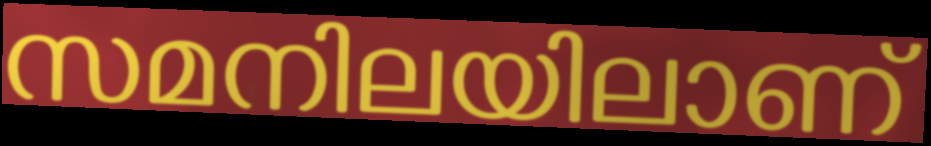
സമനിലയിലാണ്